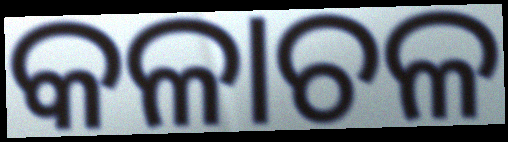
କଳାଚଳ